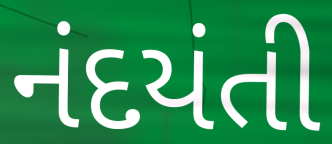
નંદયંતી